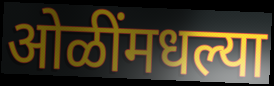
ओळींमधल्या